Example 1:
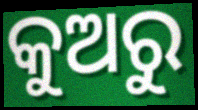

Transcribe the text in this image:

କୁଅରୁ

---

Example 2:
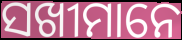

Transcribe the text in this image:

ସଖୀମାନେ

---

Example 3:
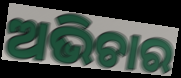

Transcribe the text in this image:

ଅଭିଚାର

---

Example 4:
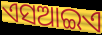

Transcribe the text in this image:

ଏସଆଇଏ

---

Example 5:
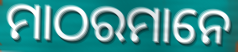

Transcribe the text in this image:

ମାଠରମାନେ